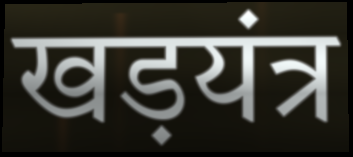
खड़यंत्र